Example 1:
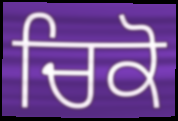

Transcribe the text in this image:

ਚਿਕੋ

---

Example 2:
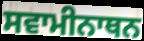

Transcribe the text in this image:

ਸਵਾਮੀਨਾਥਨ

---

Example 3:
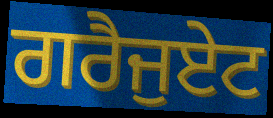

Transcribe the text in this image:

ਗਰੈਜੁਏਟ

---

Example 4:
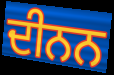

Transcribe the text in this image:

ਦੀਨਨ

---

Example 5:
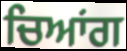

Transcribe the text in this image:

ਚਿਆਂਗ